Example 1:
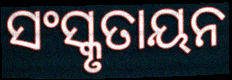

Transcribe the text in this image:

ସଂସ୍କୃତାୟନ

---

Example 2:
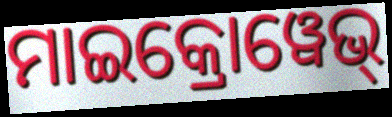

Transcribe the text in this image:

ମାଇକ୍ରୋୱେଭ୍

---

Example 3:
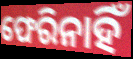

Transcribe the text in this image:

ଫେରିନାହିଁ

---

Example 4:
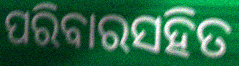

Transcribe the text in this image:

ପରିବାରସହିତ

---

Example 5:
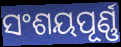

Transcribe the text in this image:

ସଂଶୟପୂର୍ଣ୍ଣ